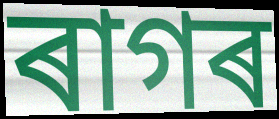
ৰাগৰ